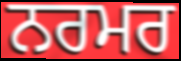
ਨਰਮਰ